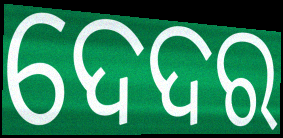
ଦେଦର